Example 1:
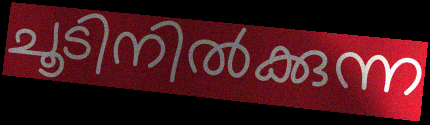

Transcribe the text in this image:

ചൂടിനിൽക്കുന്ന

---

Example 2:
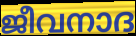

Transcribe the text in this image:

ജീവനാദ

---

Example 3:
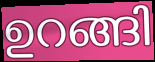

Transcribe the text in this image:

ഉറങ്ങി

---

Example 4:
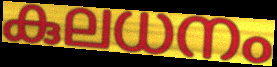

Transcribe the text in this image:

കുലധനം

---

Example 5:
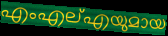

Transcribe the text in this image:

എംഎല്എയുമായ